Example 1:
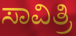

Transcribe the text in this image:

ಸಾವಿತ್ರಿ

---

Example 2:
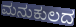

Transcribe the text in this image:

ಮನುಕುಲದ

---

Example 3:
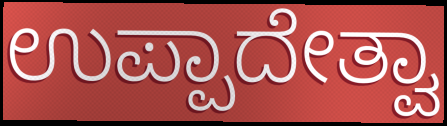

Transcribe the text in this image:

ಉಪ್ಪಾದೇತ್ವಾ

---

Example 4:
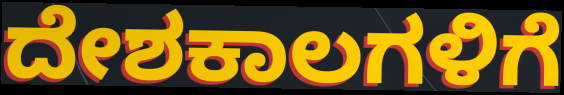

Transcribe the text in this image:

ದೇಶಕಾಲಗಳಿಗೆ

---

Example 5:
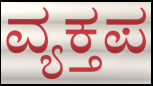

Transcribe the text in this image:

ವ್ಯಕ್ತಪ